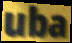
uba